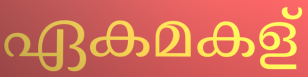
ഏകമകള്